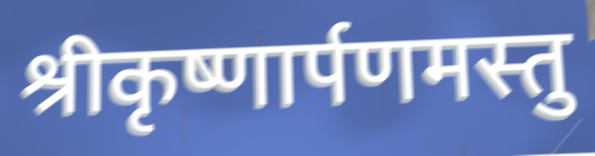
श्रीकृष्णार्पणमस्तु